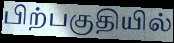
பிற்பகுதியில்